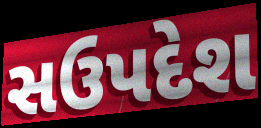
સઉપદેશ